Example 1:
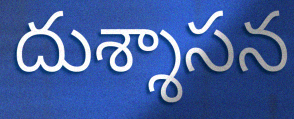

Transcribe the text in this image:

దుశ్శాసన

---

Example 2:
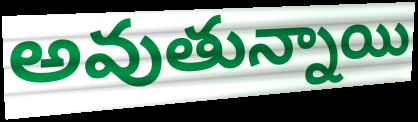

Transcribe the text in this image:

అవుతున్నాయి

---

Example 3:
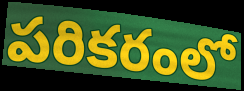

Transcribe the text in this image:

పరికరంలో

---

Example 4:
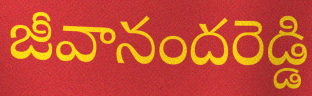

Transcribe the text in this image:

జీవానందరెడ్డి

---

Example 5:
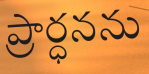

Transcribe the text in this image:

ప్రార్ధనను